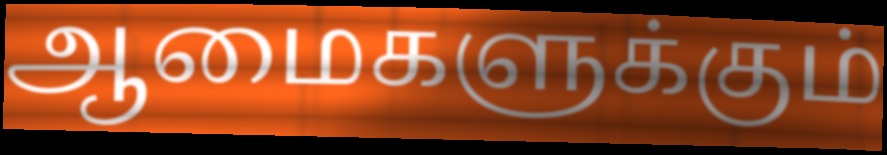
ஆமைகளுக்கும்